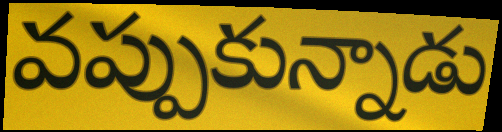
వప్పుకున్నాడు